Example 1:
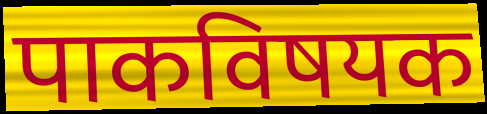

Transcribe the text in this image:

पाकविषयक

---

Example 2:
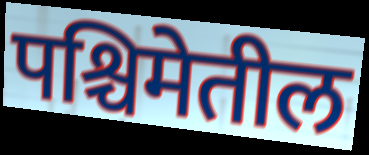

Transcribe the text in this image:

पश्चिमेतील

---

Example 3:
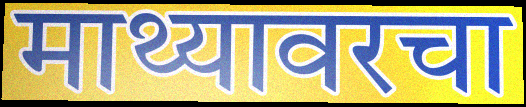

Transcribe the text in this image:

माथ्यावरचा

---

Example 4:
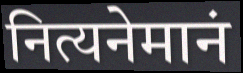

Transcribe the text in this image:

नित्यनेमानं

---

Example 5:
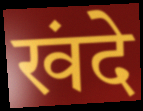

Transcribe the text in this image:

खंदे